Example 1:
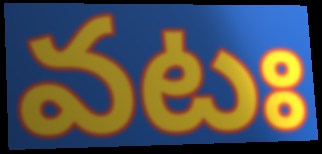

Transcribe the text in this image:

వటః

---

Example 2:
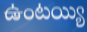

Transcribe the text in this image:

ఉంటయ్యి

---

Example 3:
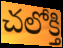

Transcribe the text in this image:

చలోక్తి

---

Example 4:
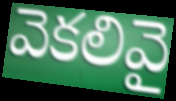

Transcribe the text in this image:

వెకలివై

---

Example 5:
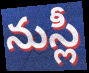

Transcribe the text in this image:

నుస్లీ